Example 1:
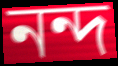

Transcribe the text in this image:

নন্দ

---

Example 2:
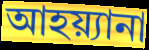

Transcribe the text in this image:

আহয়্যানা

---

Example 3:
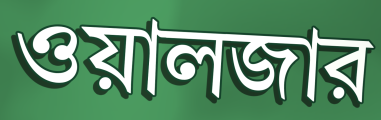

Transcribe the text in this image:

ওয়ালজার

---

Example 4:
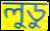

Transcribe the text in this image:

লুডু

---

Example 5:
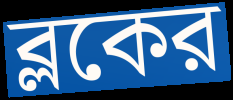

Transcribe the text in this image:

ব্লকের